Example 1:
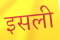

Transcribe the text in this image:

इसली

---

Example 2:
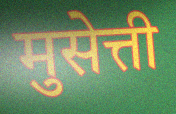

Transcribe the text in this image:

मुसेत्ती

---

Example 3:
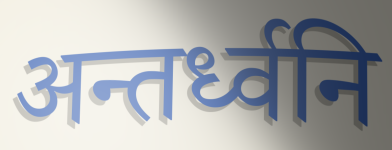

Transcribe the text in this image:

अन्तर्ध्वनि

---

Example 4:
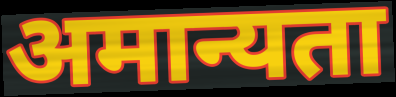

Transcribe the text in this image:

अमान्यता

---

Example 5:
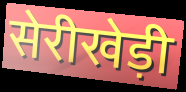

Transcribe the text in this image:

सेरीखेड़ी